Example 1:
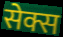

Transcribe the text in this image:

सेक्स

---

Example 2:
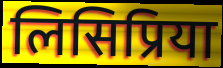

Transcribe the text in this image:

लिसिप्रिया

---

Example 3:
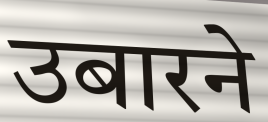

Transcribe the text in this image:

उबारने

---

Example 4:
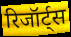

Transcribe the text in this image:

रिजॉर्ट्स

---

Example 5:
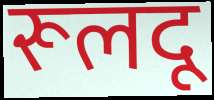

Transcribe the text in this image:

रूलदू